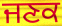
ਜਣਕ